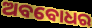
ଅବବୋଧର